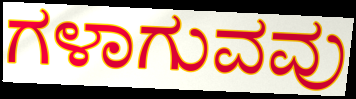
ಗಳಾಗುವವು